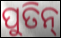
ପୁତିନ୍